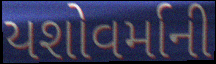
યશોવર્માની